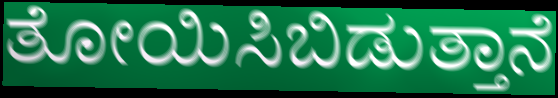
ತೋಯಿಸಿಬಿಡುತ್ತಾನೆ